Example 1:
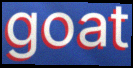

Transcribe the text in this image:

goat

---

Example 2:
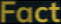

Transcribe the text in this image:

Fact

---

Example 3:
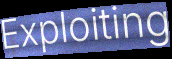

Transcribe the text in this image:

Exploiting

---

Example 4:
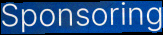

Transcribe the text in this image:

Sponsoring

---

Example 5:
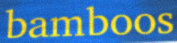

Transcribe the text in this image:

bamboos